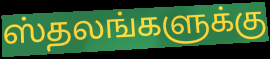
ஸ்தலங்களுக்கு